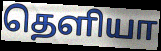
தெளியா